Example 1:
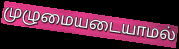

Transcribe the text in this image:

முழுமையடையாமல்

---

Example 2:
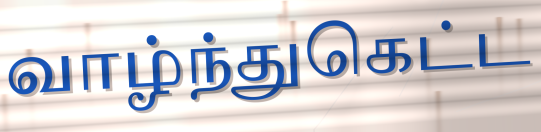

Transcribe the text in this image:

வாழ்ந்துகெட்ட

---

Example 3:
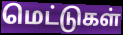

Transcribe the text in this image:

மெட்டுகள்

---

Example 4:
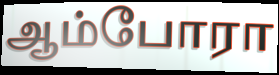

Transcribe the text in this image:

ஆம்போரா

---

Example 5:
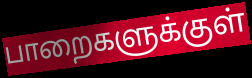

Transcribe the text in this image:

பாறைகளுக்குள்